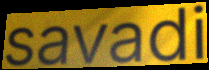
savadi